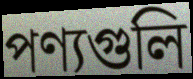
পণ্যগুলি